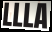
LLLA